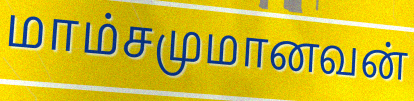
மாம்சமுமானவன்